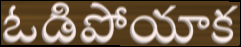
ఓడిపోయాక